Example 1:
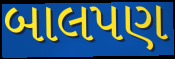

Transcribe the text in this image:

બાલપણ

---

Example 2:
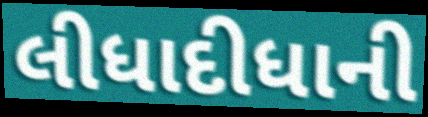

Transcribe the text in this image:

લીધાદીધાની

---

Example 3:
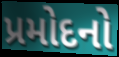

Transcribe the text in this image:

પ્રમોદનો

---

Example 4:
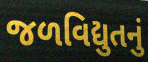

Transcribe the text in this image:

જળવિદ્યુતનું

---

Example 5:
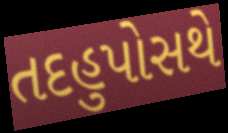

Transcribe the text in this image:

તદહુપોસથે